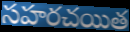
సహరచయిత